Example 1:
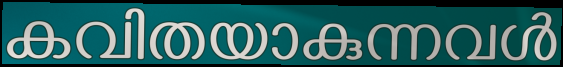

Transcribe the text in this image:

കവിതയാകുന്നവൾ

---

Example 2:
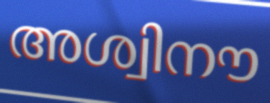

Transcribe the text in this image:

അശ്വിനൗ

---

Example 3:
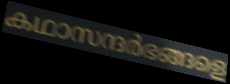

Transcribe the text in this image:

കഥാസന്ദർഭങ്ങളെ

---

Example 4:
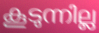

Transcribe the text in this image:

കൂടുന്നില്ല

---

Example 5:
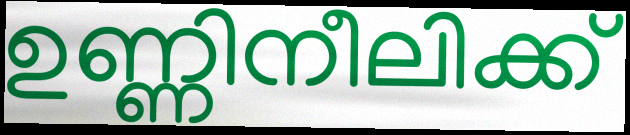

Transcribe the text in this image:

ഉണ്ണിനീലിക്ക്